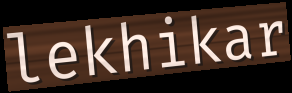
lekhikar